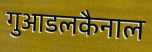
गुआडलकैनाल